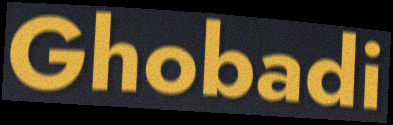
Ghobadi